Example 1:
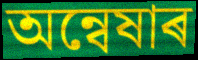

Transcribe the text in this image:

অন্বেষাৰ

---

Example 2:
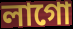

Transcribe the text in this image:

লাগো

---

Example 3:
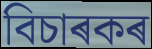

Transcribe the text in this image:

বিচাৰকৰ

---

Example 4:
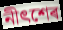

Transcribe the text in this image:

নীৎশেৰ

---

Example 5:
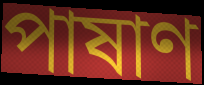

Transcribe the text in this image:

পাষাণ